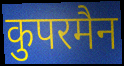
कुपरमैन